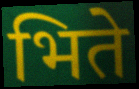
भिते